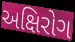
અક્ષિરોગ